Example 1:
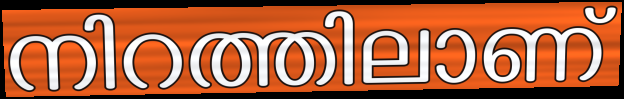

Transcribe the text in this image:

നിറത്തിലാണ്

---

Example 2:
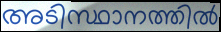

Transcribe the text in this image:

അടിസ്ഥാനത്തിൽ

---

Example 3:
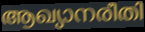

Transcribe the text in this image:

ആഖ്യാനരീതി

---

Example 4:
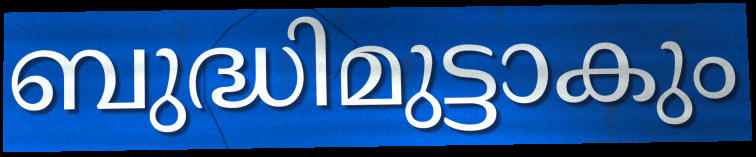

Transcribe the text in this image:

ബുദ്ധിമുട്ടാകും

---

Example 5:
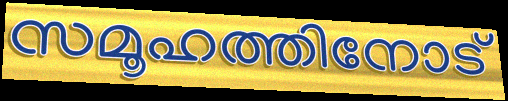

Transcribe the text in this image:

സമൂഹത്തിനോട്